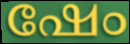
ഷേം